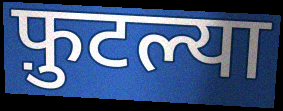
फ़ुटल्या